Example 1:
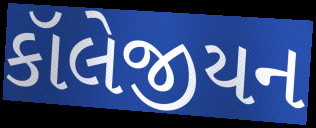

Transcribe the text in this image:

કૉલેજીયન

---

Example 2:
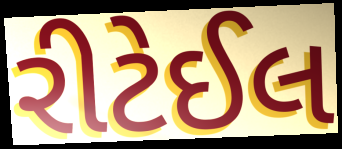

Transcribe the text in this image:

રીટેઈલ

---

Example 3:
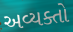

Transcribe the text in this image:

અવ્યક્તો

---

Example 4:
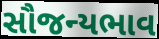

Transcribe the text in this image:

સૌજન્યભાવ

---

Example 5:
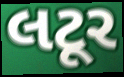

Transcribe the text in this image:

લટૂર